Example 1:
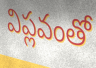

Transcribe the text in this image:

విప్లవంతో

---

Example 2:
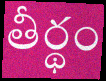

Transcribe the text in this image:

తీర్థం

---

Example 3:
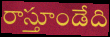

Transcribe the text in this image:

రాస్తూండేది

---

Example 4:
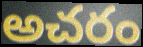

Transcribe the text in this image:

అచరం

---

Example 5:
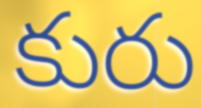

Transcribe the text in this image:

కురు